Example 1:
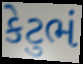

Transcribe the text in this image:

કેટુભં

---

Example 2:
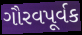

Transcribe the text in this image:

ગૌરવપૂર્વક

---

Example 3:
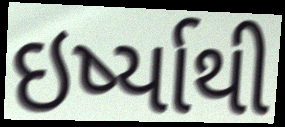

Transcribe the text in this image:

ઇર્ષ્યાથી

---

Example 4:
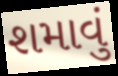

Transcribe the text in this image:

શમાવું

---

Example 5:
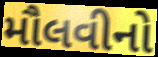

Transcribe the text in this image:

મૌલવીનો